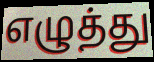
எழுத்து